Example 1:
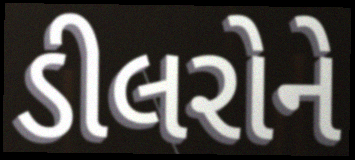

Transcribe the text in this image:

ડીલરોને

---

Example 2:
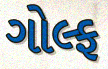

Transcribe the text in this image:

ગોલ્ફ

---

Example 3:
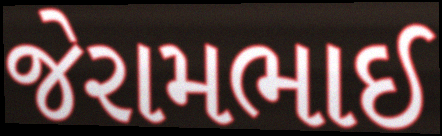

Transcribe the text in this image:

જેરામભાઈ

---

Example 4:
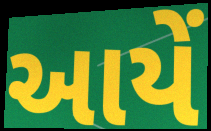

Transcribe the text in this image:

આયેં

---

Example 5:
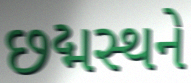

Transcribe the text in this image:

છદ્મસ્થને